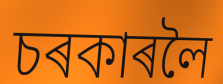
চৰকাৰলৈ